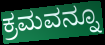
ಕ್ರಮವನ್ನೂ